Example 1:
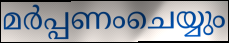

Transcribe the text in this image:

മർപ്പണംചെയ്യും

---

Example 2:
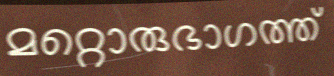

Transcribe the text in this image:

മറ്റൊരുഭാഗത്ത്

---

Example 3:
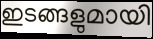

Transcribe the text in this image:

ഇടങ്ങളുമായി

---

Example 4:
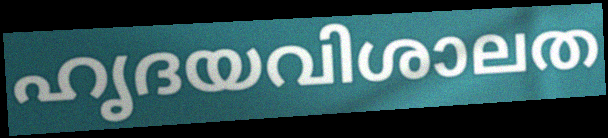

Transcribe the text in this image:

ഹൃദയവിശാലത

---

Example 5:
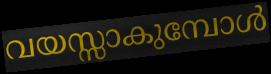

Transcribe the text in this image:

വയസ്സാകുമ്പോൾ